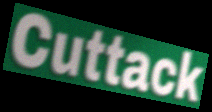
Cuttack